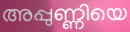
അപ്പുണ്ണിയെ